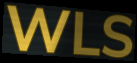
WLS